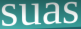
suas